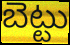
బెట్టు